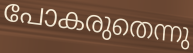
പോകരുതെന്നു